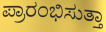
ಪ್ರಾರಂಭಿಸುತ್ತಾ